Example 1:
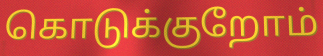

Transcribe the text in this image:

கொடுக்குறோம்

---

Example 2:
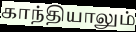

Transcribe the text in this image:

காந்தியாலும்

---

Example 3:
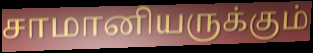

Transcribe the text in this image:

சாமானியருக்கும்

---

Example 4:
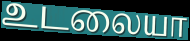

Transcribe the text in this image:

உடலையா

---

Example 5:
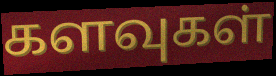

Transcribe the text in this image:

களவுகள்